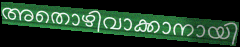
അതൊഴിവാക്കാനായി